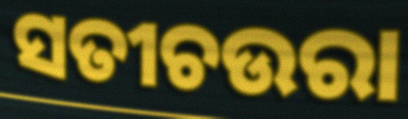
ସତୀଚଉରା